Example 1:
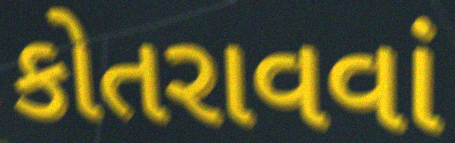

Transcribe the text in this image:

કોતરાવવાં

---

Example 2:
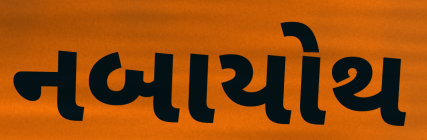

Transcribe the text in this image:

નબાયોથ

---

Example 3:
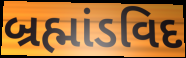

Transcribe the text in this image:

બ્રહ્માંડવિદ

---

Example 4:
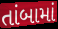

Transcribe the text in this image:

તાંબામાં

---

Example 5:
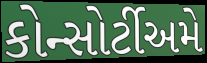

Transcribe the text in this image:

કોન્સોર્ટીઅમે